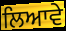
ਲਿਆਵੇ